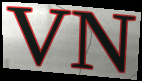
VN